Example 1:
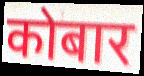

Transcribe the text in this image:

कोबार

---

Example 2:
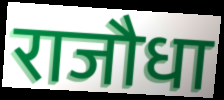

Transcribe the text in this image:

राजौधा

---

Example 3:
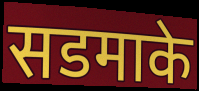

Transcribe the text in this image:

सडमाके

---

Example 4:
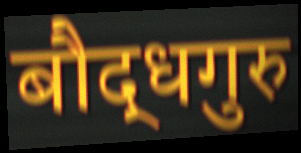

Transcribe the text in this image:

बौद्धगुरु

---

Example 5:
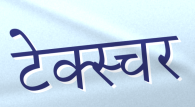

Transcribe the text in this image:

टेक्स्चर